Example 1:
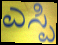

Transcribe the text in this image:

ಎಸ್ಪಿ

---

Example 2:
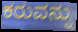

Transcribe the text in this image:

ಕರುವನ್ನು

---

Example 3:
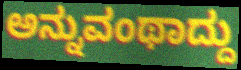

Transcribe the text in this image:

ಅನ್ನುವಂಥಾದ್ದು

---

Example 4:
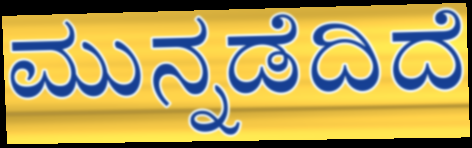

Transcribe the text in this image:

ಮುನ್ನಡೆದಿದೆ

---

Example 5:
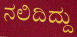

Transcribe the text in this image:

ನಲಿದಿದ್ದು